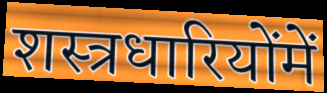
शस्त्रधारियोंमें